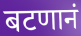
बटणानं